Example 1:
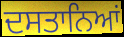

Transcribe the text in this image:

ਦਸਤਾਨਿਆਂ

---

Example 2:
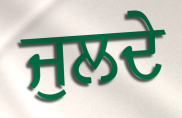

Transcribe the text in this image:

ਜੁਲਦੇ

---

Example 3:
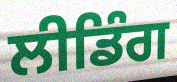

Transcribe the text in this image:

ਲੀਡਿੰਗ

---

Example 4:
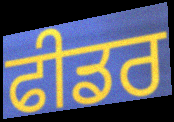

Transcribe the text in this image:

ਫੀਡਰ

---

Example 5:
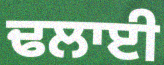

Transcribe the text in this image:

ਢਲਾਈ